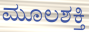
ಮೂಲಶಕ್ತಿ